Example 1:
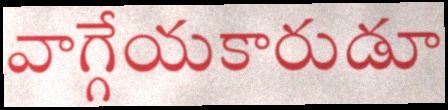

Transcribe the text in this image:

వాగ్గేయకారుడూ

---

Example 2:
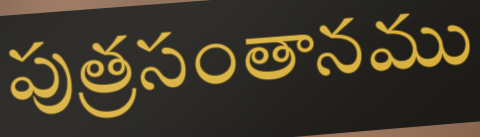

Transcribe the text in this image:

పుత్రసంతానము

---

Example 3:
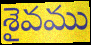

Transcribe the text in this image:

శైవము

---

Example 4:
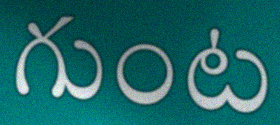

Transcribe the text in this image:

గుంట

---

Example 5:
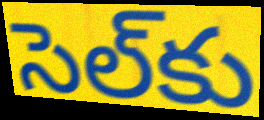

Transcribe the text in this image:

సెల్‌కు